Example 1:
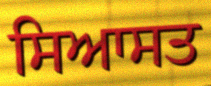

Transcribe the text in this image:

ਸਿਆਸਤ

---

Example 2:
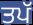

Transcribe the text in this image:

ਤਪੱ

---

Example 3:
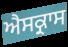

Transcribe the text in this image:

ਐਸਕ੍ਰਾਸ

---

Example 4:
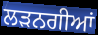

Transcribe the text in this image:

ਲੜਨਗੀਆਂ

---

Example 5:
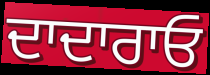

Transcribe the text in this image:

ਦਾਦਾਰਾਓ